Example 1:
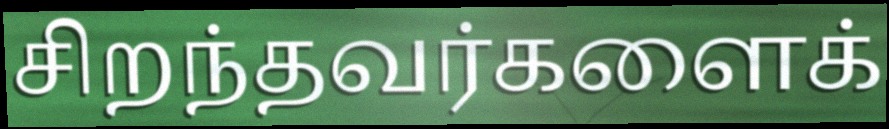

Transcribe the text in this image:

சிறந்தவர்களைக்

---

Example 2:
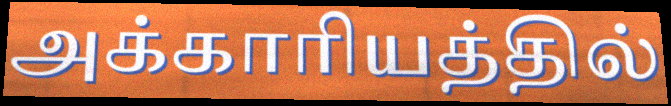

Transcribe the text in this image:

அக்காரியத்தில்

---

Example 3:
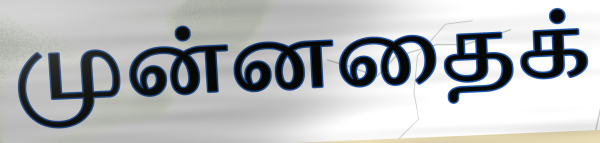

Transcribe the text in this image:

முன்னதைக்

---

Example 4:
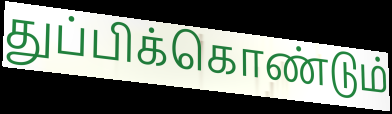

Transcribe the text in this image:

துப்பிக்கொண்டும்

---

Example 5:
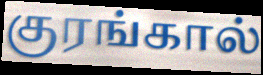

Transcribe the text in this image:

குரங்கால்